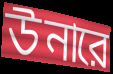
উনারে